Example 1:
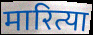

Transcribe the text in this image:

मारित्या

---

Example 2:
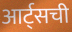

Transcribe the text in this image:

आर्ट्सची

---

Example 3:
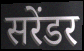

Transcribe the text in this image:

सरेंडर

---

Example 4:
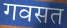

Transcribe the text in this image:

गवसत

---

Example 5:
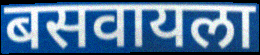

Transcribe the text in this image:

बसवायला